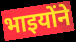
भाइयोंने